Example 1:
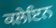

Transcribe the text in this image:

ਕਲੇਇਨ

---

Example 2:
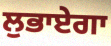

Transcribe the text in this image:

ਲੁਭਾਏਗਾ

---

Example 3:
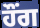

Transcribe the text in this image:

ਹੌਂਗ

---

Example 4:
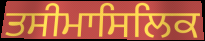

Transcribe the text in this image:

ਤਸੀਮਾਸਿਲਿਕ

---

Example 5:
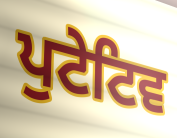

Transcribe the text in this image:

ਪੁਟੇਟਿਵ